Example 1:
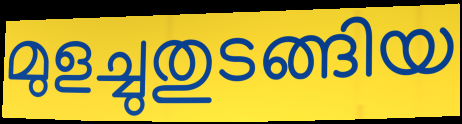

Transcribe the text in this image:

മുളച്ചുതുടങ്ങിയ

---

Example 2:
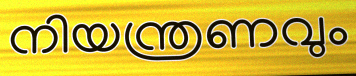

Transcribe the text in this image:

നിയന്ത്രണവും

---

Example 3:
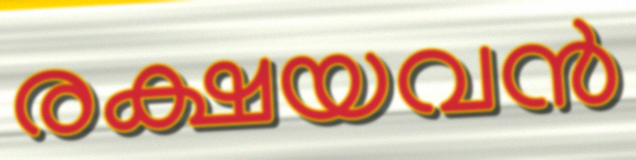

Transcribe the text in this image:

രക്ഷയവൻ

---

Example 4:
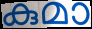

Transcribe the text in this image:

കുമാ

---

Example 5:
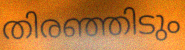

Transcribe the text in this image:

തിരഞ്ഞിടും